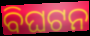
ବିଘଟନ